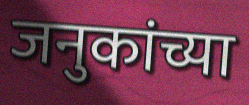
जनुकांच्या